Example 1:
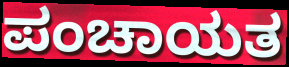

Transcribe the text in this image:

ಪಂಚಾಯತ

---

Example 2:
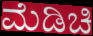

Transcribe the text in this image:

ಮೆಡಿಚಿ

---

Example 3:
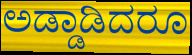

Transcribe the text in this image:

ಅಡ್ಡಾಡಿದರೂ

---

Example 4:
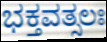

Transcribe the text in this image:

ಭಕ್ತವತ್ಸಲಃ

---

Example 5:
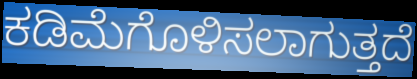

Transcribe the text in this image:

ಕಡಿಮೆಗೊಳಿಸಲಾಗುತ್ತದೆ